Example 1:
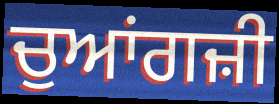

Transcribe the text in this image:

ਚੁਆਂਗਜ਼ੀ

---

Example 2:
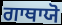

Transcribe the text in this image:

ਗਾਥਾਯੋ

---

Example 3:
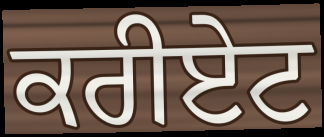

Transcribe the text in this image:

ਕਰੀਏਟ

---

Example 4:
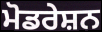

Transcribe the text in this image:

ਮੋਡਰੇਸ਼ਨ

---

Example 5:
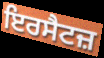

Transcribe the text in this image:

ਇਰਸੈਟਜ਼